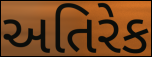
અતિરેક